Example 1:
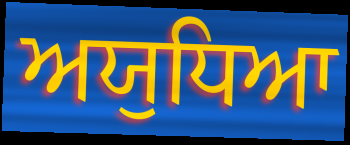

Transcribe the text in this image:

ਅਯੁਧਿਆ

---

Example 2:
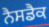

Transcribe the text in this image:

ਨੈਸਡੈਕ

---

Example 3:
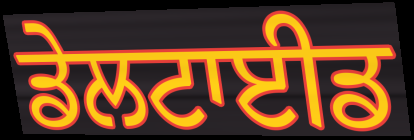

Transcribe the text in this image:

ਡੇਲਟਾਈਡ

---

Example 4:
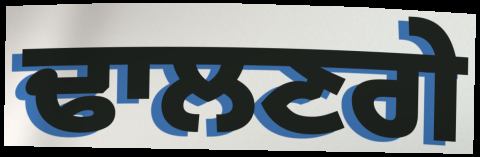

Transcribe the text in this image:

ਢਾਲਣਗੇ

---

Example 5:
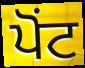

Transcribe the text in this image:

ਪੋਂਟ